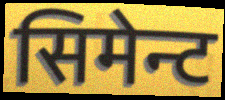
सिमेन्ट